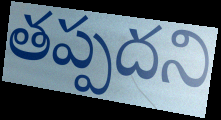
తప్పదని